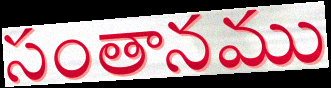
సంతానము